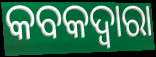
କବକଦ୍ୱାରା